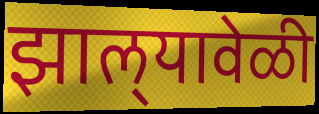
झाल्यावेळी